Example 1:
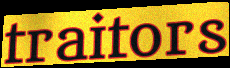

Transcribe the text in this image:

traitors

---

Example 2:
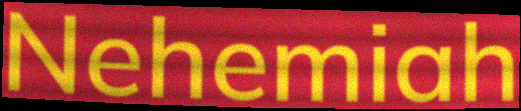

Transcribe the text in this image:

Nehemiah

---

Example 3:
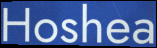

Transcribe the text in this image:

Hoshea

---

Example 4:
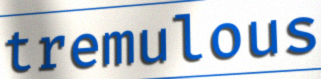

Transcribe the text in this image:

tremulous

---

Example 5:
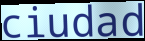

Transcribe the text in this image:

ciudad